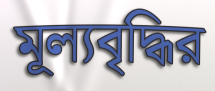
মূল্যবৃদ্ধির